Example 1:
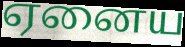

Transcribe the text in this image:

ஏனைய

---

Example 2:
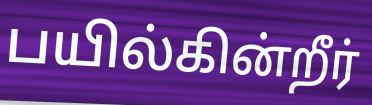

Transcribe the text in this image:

பயில்கின்றீர்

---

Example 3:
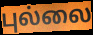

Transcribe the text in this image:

புல்லை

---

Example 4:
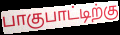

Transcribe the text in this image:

பாகுபாட்டிற்கு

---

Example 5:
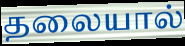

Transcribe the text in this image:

தலையால்